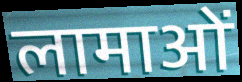
लामाओं